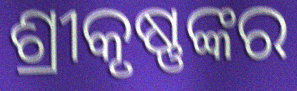
ଶ୍ରୀକୃଷ୍ଣଙ୍କର